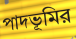
পাদভূমির